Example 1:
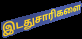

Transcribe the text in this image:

இடதுசாரிகளை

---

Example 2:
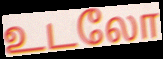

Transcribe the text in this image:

உடலோ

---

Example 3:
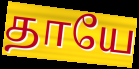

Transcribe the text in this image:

தாயே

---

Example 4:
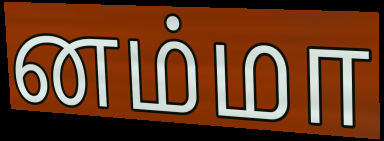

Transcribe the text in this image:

னம்மா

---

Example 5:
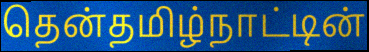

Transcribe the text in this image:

தென்தமிழ்நாட்டின்